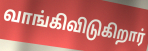
வாங்கிவிடுகிறார்